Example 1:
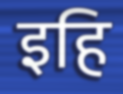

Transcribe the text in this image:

इहि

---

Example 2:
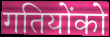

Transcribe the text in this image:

गतियोंको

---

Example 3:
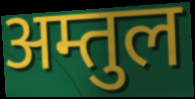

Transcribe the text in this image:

अम्तुल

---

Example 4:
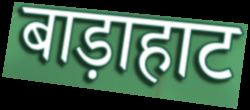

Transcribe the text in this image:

बाड़ाहाट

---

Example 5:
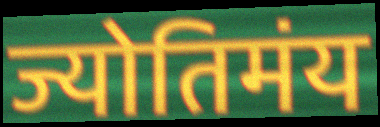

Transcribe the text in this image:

ज्योतिमंय